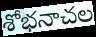
శోభనాచల